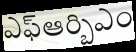
ఎఫ్ఆర్బిఎం